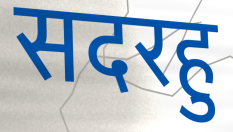
सदरहु